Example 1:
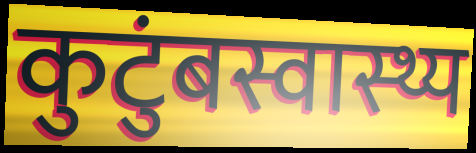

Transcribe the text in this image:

कुटुंबस्वास्थ्य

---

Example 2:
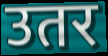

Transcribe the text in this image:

उतर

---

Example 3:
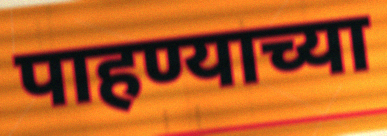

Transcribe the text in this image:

पाहण्याच्या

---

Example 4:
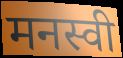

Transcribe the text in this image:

मनस्वी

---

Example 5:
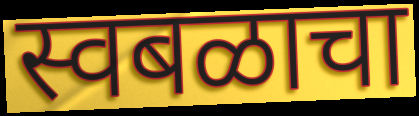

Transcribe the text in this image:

स्वबळाचा